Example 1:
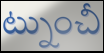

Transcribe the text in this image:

ట్నుంచీ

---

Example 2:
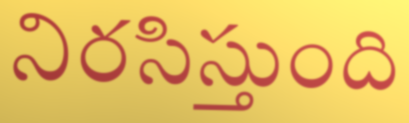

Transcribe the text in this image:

నిరసిస్తుంది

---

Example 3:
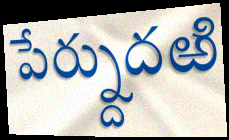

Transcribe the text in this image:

పేర్న్దుదఱి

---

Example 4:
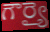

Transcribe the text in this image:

గౌర్యై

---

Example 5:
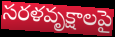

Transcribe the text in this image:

సరళవృక్షాలపై